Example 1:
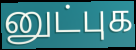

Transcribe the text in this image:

னுட்புக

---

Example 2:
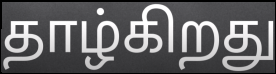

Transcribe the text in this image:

தாழ்கிறது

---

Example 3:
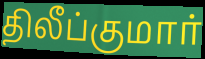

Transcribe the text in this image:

திலீப்குமார்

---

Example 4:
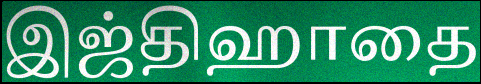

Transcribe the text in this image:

இஜ்திஹாதை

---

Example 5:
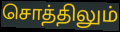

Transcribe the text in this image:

சொத்திலும்